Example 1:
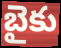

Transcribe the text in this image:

బైకు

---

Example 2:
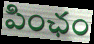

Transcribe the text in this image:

పింఛం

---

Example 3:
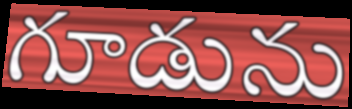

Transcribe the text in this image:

గూడును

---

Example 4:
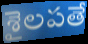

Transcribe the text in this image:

శైలపతే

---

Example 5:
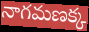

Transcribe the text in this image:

నాగమణక్క